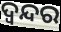
ଦ୍ବନ୍ଦର